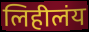
लिहीलंय